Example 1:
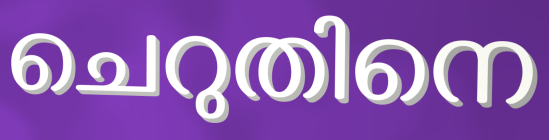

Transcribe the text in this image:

ചെറുതിനെ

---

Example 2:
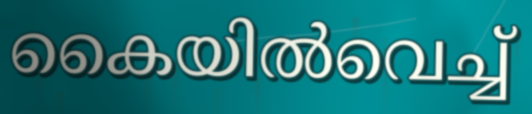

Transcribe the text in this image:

കൈയിൽവെച്ച്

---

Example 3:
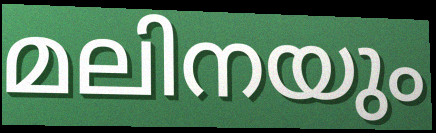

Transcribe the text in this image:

മലിനയും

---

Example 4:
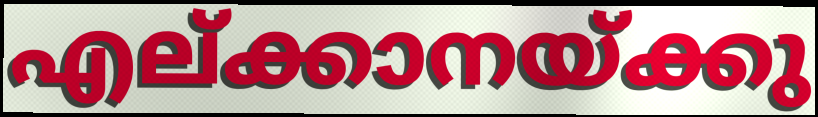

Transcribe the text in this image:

എല്ക്കാനയ്ക്കു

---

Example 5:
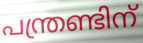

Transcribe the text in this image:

പന്ത്രണ്ടിന്